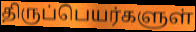
திருப்பெயர்களுள்